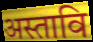
अस्तावि